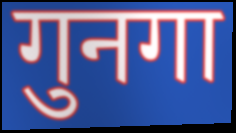
गुनगा